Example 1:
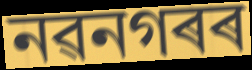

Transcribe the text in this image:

নৱনগৰৰ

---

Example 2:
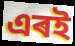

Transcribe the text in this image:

এৰই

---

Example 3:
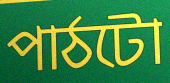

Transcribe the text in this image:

পাঠটো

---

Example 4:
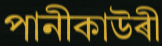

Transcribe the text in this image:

পানীকাউৰী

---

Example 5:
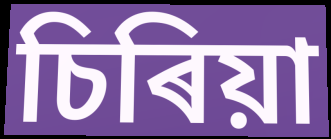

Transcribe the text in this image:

চিৰিয়া